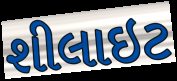
શીલાઇટ